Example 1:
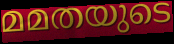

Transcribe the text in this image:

മമതയുടെ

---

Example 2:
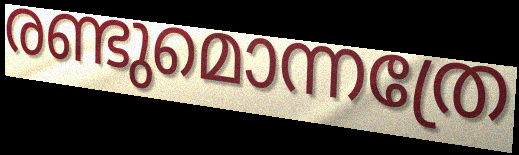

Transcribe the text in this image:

രണ്ടുമൊന്നത്രേ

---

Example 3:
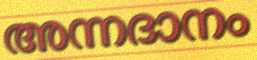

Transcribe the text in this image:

അന്നദാനം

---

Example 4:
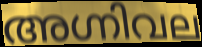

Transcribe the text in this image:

അഗ്നിവല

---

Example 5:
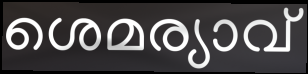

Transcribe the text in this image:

ശെമര്യാവ്